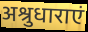
अश्रुधाराएं